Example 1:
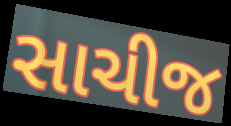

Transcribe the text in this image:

સાચીજ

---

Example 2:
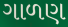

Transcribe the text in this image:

ગાળણ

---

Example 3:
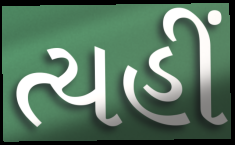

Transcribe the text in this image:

ત્યહીં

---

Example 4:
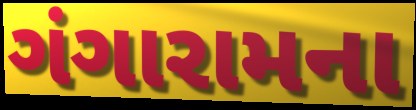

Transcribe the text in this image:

ગંગારામના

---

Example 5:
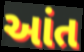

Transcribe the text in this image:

આંત